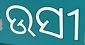
ଉସୀ